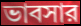
ভাবসার